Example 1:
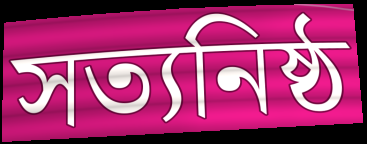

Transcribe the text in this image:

সত্যনিষ্ঠ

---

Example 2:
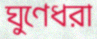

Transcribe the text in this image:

ঘুণেধরা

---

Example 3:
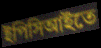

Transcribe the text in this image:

ইপিসিআইতে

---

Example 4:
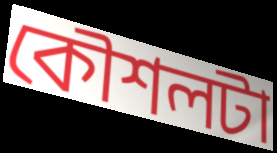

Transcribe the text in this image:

কৌশলটা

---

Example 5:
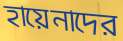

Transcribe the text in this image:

হায়েনাদের